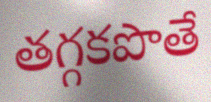
తగ్గకపొతే